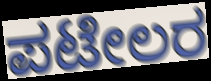
ಪಟೇಲರ